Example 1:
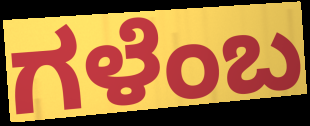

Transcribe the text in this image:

ಗಳೆಂಬ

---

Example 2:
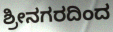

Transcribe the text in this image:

ಶ್ರೀನಗರದಿಂದ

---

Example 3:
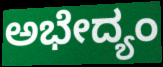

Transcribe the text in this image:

ಅಭೇದ್ಯಂ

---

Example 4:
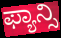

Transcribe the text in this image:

ಫ್ಯಾನ್ಸಿ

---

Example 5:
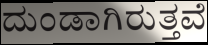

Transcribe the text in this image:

ದುಂಡಾಗಿರುತ್ತವೆ